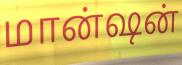
மான்ஷன்